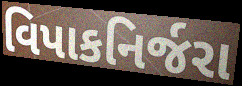
વિપાકનિર્જરા